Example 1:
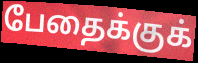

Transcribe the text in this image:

பேதைக்குக்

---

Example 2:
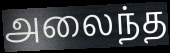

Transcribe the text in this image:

அலைந்த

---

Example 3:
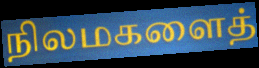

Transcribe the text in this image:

நிலமகளைத்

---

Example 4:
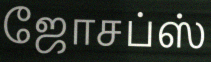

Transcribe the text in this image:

ஜோசப்ஸ்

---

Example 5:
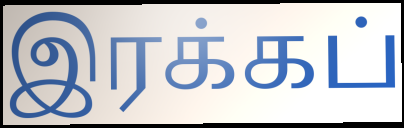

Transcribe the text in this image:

இரக்கப்